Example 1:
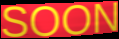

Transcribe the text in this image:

SOON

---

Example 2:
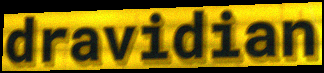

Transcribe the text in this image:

dravidian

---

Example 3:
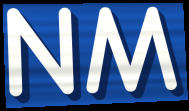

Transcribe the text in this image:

NM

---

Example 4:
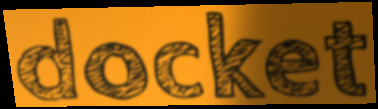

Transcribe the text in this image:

docket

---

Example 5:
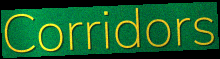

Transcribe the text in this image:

Corridors